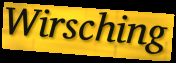
Wirsching